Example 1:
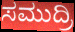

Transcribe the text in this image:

ಸಮುದ್ರಿ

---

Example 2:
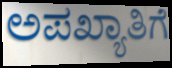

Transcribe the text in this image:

ಅಪಖ್ಯಾತಿಗೆ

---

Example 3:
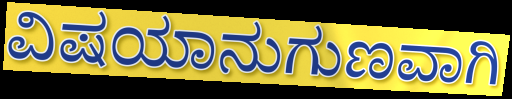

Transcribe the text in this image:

ವಿಷಯಾನುಗುಣವಾಗಿ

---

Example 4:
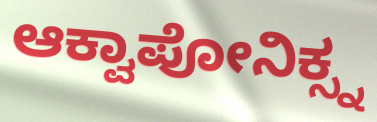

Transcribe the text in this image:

ಆಕ್ವಾಪೋನಿಕ್ಸ್ನ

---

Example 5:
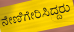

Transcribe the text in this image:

ನೇಣಿಗೇರಿಸಿದ್ದರು